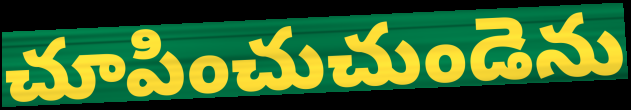
చూపించుచుండెను